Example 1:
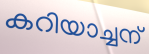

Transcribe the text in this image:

കറിയാച്ചന്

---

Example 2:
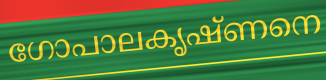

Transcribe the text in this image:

ഗോപാലകൃഷ്ണനെ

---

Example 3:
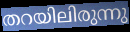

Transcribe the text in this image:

തറയിലിരുന്നു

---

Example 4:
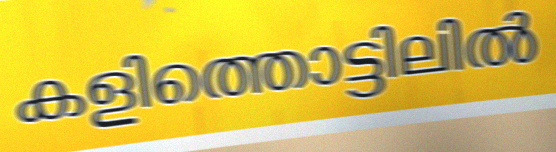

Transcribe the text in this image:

കളിത്തൊട്ടിലിൽ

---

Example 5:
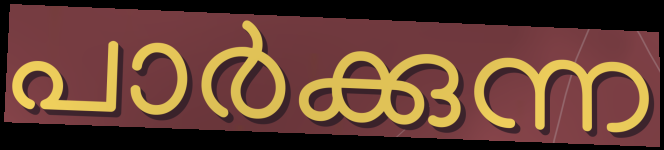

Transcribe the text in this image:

പാർക്കുന്ന